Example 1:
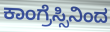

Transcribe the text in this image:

ಕಾಂಗ್ರೆಸ್ಸಿನಿಂದ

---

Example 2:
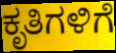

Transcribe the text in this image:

ಕೃತಿಗಳಿಗೆ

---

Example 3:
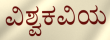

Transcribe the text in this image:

ವಿಶ್ವಕವಿಯ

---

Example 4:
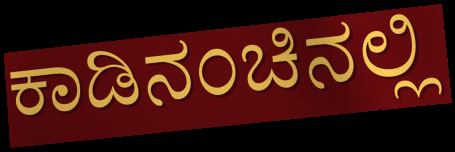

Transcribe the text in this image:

ಕಾಡಿನಂಚಿನಲ್ಲಿ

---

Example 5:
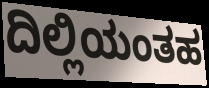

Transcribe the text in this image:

ದಿಲ್ಲಿಯಂತಹ